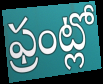
ఫ్రంట్లో